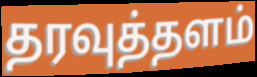
தரவுத்தளம்